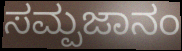
ಸಮ್ಪಜಾನಂ